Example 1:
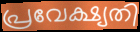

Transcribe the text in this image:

പ്രവേക്ഷ്യതി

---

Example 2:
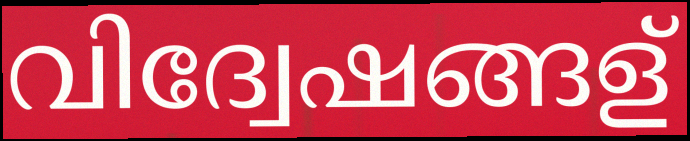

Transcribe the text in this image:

വിദ്വേഷങ്ങള്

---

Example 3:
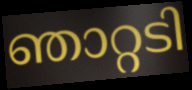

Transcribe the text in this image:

ഞാറ്റടി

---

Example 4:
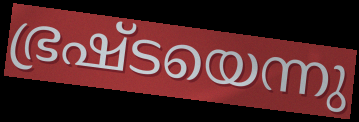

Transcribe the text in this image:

ഭ്രഷ്ടയെന്നു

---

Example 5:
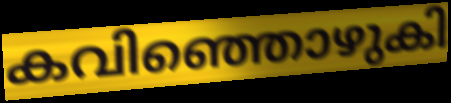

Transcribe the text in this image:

കവിഞ്ഞൊഴുകി